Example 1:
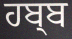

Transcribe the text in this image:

ਹਬ੍ਬ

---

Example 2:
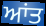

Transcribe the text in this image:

ਆਂਤ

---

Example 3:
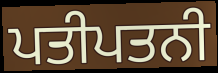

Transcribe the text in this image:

ਪਤੀਪਤਨੀ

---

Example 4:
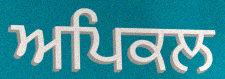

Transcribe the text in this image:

ਅਪਿਕਲ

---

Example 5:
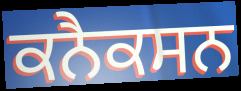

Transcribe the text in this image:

ਕਨੈਕਸਨ